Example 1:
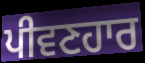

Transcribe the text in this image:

ਪੀਵਣਹਾਰ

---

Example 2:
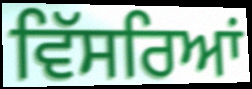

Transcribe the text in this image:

ਵਿੱਸਰਿਆਂ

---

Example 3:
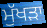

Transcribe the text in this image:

ਮੁੱਖੜਾ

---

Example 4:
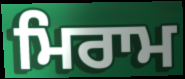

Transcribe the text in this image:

ਮਿਰਾਮ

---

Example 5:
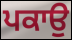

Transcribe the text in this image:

ਪਕਾਉ